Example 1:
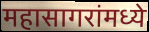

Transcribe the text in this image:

महासागरांमध्ये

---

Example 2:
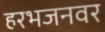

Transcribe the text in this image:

हरभजनवर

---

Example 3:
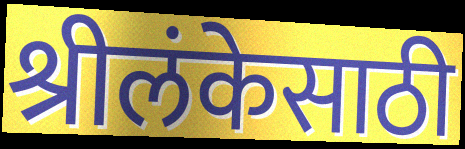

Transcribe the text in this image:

श्रीलंकेसाठी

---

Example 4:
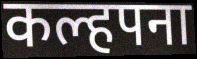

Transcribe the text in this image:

कल्हपना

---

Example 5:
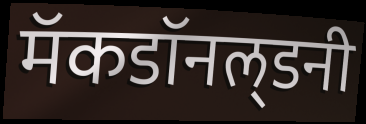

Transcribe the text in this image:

मॅकडॉनल्डनी